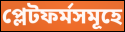
প্লেটফৰ্মসমূহে